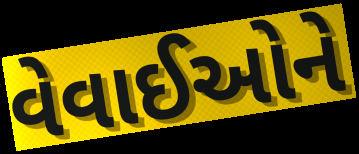
વેવાઈઓને